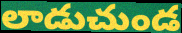
లాడుచుండ